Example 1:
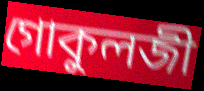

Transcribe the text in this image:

গোকুলজী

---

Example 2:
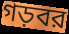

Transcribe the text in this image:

গড়বর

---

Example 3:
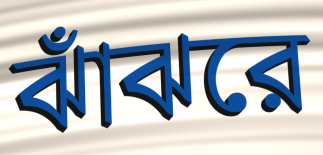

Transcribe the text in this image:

ঝাঁঝরে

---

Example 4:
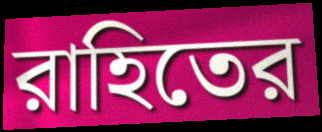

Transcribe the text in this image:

রাহিতের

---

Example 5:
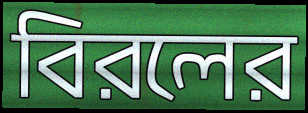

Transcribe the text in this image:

বিরলের